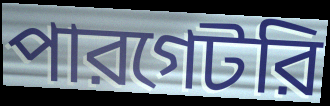
পারগেটরি